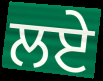
ਲਏ